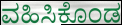
ವಹಿಸಿಕೊಂಡ